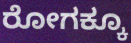
ರೋಗಕ್ಕೂ